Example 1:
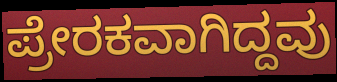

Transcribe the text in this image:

ಪ್ರೇರಕವಾಗಿದ್ದವು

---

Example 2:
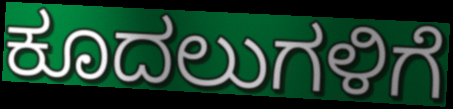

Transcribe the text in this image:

ಕೂದಲುಗಳಿಗೆ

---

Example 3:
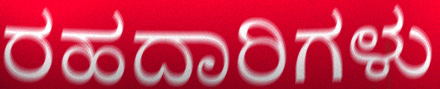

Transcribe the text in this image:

ರಹದಾರಿಗಳು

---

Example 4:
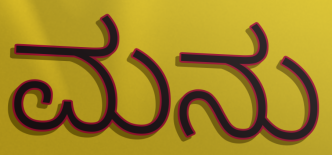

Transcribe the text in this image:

ಮನು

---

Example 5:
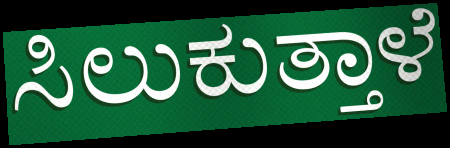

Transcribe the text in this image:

ಸಿಲುಕುತ್ತಾಳೆ